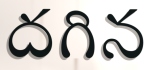
దగిన